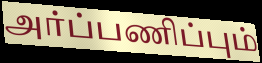
அர்ப்பணிப்பும்